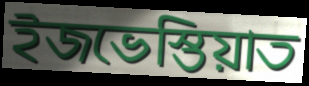
ইজভেস্তিয়াত